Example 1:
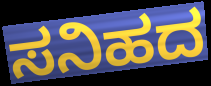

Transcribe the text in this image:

ಸನಿಹದ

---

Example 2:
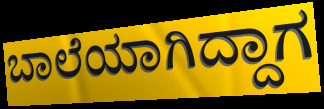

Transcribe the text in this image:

ಬಾಲೆಯಾಗಿದ್ದಾಗ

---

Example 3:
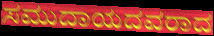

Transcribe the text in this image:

ಸಮುದಾಯದವರಾದ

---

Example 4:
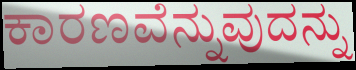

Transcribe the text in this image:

ಕಾರಣವೆನ್ನುವುದನ್ನು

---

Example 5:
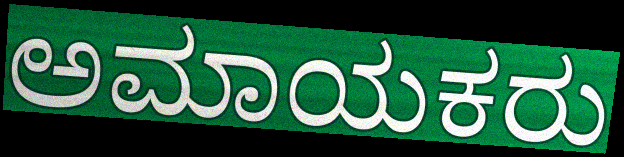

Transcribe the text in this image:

ಅಮಾಯಕರು